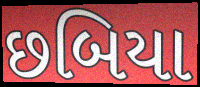
છબિયા